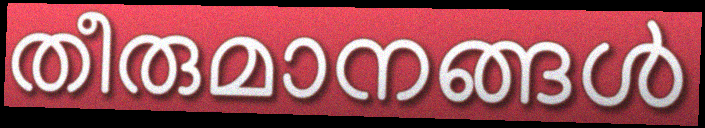
തീരുമാനങ്ങൾ